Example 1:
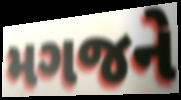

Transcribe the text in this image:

મગજને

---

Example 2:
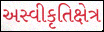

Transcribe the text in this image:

અસ્વીકૃતિક્ષેત્ર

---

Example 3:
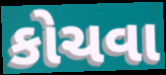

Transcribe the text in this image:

કોચવા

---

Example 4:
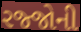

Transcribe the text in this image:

રજ્જોની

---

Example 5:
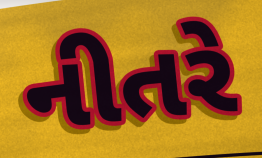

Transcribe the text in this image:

નીતરે